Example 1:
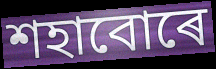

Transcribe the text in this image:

শহাবোৰে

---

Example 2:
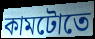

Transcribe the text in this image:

কামটোতে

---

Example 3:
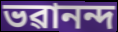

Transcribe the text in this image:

ভৱানন্দ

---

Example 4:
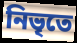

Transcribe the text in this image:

নিভৃতে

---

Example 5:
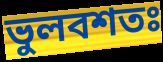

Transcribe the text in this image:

ভুলবশতঃ